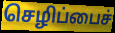
செழிப்பைச்